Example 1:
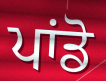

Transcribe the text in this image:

ਪਾਂਡੋ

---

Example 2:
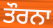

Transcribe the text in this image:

ਤੌਰਨਾ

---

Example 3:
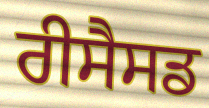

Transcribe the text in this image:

ਰੀਸੈਸਡ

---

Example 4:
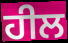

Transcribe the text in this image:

ਹੀਲ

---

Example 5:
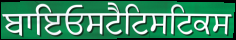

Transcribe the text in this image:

ਬਾਇਓਸਟੈਟਿਸਟਿਕਸ